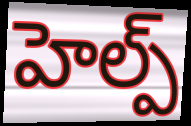
హెల్ప్